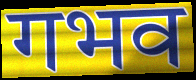
गभव